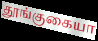
தூங்குகையா